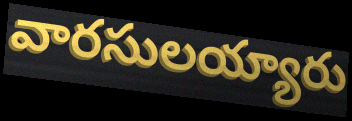
వారసులయ్యారు